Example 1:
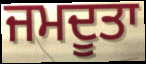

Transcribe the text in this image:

ਜਮਦੂਤਾ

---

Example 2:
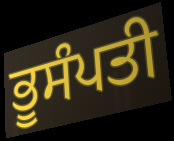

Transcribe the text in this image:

ਭੂਸੰਪਤੀ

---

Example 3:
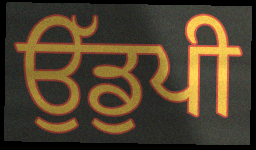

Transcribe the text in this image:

ਉੱਡੁਪੀ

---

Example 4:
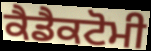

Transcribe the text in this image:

ਕੈਡੈਕਟੋਮੀ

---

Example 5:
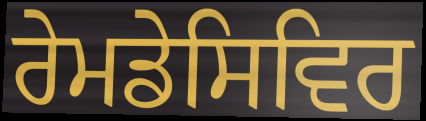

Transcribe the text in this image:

ਰੇਮਡੇਸਿਵਿਰ